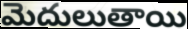
మెదులుతాయి